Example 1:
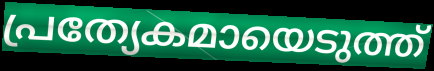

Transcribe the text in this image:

പ്രത്യേകമായെടുത്ത്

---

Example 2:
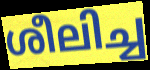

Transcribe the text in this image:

ശീലിച്ച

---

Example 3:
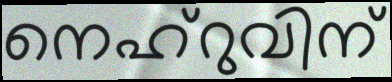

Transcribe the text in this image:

നെഹ്റുവിന്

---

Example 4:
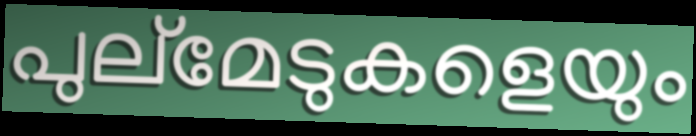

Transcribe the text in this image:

പുല്മേടുകളെയും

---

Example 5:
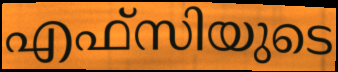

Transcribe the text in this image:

എഫ്സിയുടെ